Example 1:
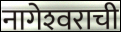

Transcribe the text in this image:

नागेश्‍वराची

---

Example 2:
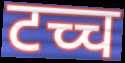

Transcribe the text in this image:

टच्च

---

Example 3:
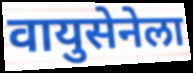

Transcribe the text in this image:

वायुसेनेला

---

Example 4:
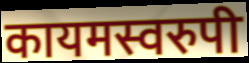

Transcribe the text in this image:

कायमस्वरुपी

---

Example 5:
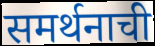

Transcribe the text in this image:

समर्थनाची